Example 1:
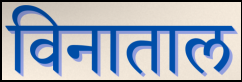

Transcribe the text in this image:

विनाताल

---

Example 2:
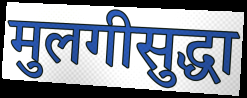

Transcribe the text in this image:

मुलगीसुद्धा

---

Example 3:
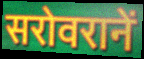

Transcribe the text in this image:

सरोवरानें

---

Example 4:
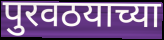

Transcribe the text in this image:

पुरवठयाच्या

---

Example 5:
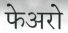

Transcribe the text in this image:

फेअरो